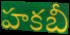
హకబీ